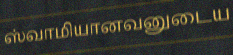
ஸ்வாமியானவனுடைய